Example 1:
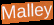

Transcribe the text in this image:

Malley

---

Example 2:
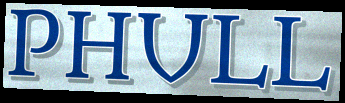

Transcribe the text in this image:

PHULL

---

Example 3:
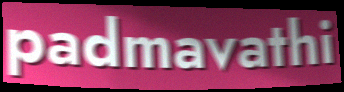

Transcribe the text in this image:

padmavathi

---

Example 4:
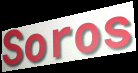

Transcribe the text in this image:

Soros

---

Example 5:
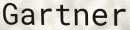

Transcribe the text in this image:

Gartner